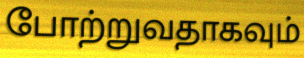
போற்றுவதாகவும்